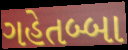
ગહેતબ્બા